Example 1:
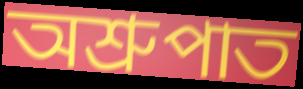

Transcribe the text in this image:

অশ্রুপাত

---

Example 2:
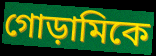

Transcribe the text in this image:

গোড়ামিকে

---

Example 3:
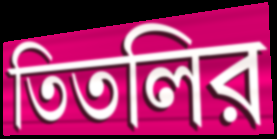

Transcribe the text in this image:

তিতলির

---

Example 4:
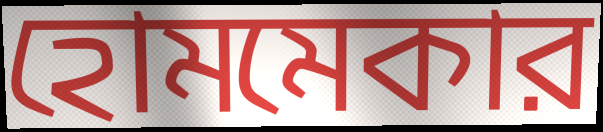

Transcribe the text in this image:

হোমমেকার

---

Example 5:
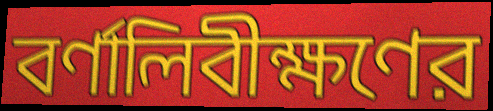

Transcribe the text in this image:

বর্ণালিবীক্ষণের